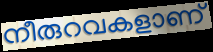
നീരുറവകളാണ്